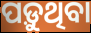
ପଡ଼ୁଥିବା